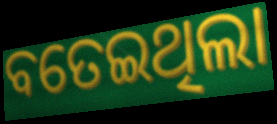
ବତେଇଥିଲା